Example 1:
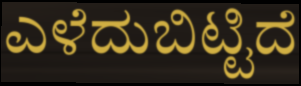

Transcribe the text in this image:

ಎಳೆದುಬಿಟ್ಟಿದೆ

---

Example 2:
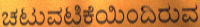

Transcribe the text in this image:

ಚಟುವಟಿಕೆಯಿಂದಿರುವ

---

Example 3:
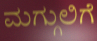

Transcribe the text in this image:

ಮಗ್ಗುಲಿಗೆ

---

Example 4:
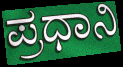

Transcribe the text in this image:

ಪ್ರಧಾನಿ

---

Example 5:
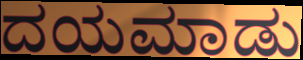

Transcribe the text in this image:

ದಯಮಾಡು